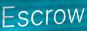
Escrow